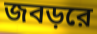
জবড়রে